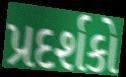
પ્રદર્શકો